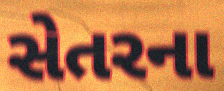
સેતરના